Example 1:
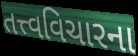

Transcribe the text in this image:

તત્ત્વવિચારના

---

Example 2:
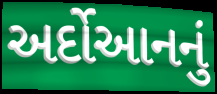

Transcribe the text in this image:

અર્દોઆનનું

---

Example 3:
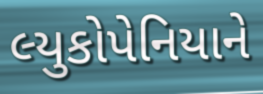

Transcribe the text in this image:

લ્યુકોપેનિયાને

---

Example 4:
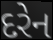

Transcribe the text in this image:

દરેન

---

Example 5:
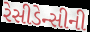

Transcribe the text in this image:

રેસીડેન્સીની